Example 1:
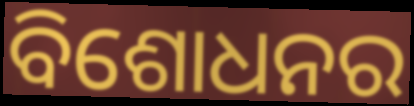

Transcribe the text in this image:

ବିଶୋଧନର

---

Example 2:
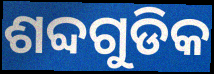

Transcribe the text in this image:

ଶବ୍ଦଗୁଡିକ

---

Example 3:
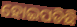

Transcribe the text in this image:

ହୋଇପଡିଛି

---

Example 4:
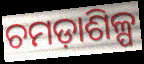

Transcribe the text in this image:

ଚମଡ଼ାଶିଳ୍ପ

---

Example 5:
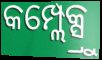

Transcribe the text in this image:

କମ୍ପ୍ଲେକ୍ସ୍ରୁ